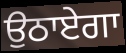
ਉਠਾਏਗਾ